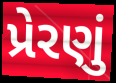
પ્રેરણું